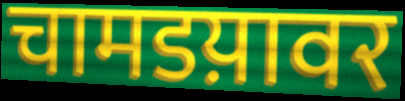
चामडय़ावर